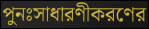
পুনঃসাধারণীকরণের